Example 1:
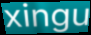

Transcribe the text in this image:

xingu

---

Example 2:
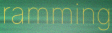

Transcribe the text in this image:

ramming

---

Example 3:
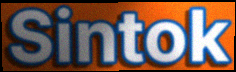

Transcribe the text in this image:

Sintok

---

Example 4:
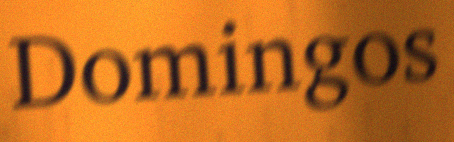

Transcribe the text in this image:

Domingos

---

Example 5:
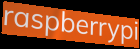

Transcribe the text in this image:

raspberrypi